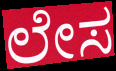
ಲೇಸ